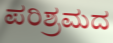
ಪರಿಶ್ರಮದ